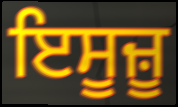
ਇਸੂਜ਼ੂ